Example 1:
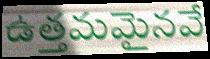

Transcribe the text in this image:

ఉత్తమమైనవే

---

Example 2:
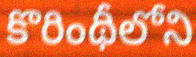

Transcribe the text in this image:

కొరింథీలోని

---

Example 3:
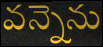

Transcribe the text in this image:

వన్నెను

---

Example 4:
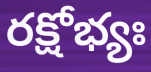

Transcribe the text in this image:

రక్షోభ్యః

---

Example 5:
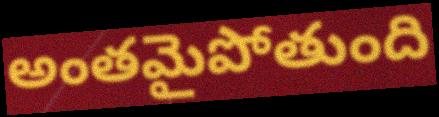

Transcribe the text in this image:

అంతమైపోతుంది